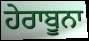
ਹੇਰਾਬੂਨਾ